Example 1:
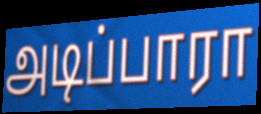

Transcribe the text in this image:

அடிப்பாரா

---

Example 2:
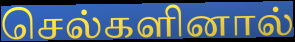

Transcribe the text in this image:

செல்களினால்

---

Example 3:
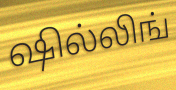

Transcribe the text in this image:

ஷில்லிங்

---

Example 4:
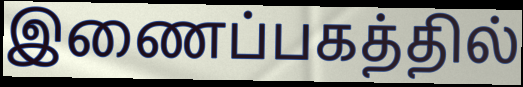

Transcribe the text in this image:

இணைப்பகத்தில்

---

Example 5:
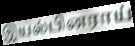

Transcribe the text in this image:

இயல்பினராய்